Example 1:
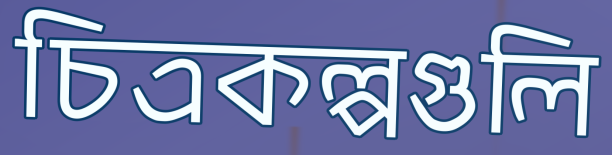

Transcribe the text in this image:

চিত্রকল্পগুলি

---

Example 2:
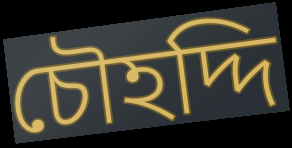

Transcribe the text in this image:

চৌহদ্দি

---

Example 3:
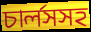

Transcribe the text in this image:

চার্লসসহ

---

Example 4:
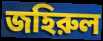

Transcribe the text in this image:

জহিরুল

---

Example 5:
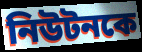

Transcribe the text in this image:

নিউটনকে